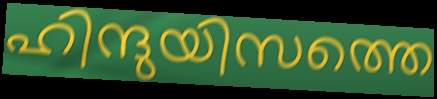
ഹിന്ദുയിസത്തെ